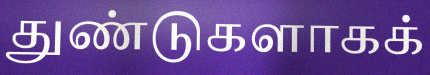
துண்டுகளாகக்